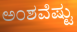
ಅಂಶವೆಷ್ಟು